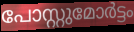
പോസ്റ്റുമോർട്ടം